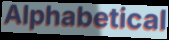
Alphabetical